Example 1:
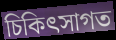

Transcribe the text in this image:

চিকিৎসাগত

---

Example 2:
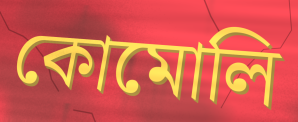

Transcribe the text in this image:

কোমোলি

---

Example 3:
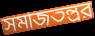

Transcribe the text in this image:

সমাজতন্ত্রর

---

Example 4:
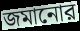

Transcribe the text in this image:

জমানোর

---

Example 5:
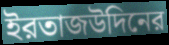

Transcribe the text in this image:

ইরতাজউদিনের